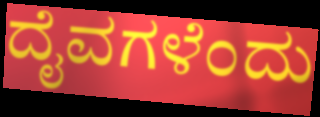
ದೈವಗಳೆಂದು